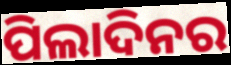
ପିଲାଦିନର